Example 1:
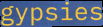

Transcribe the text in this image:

gypsies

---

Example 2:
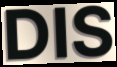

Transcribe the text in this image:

DIS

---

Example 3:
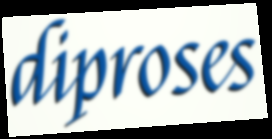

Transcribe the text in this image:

diproses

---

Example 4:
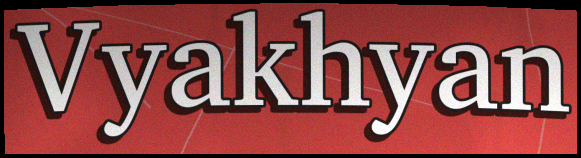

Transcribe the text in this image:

Vyakhyan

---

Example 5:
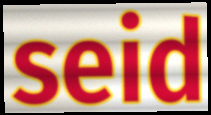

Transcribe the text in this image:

seid